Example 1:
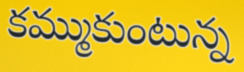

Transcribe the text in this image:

కమ్ముకుంటున్న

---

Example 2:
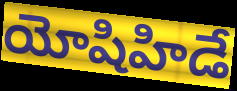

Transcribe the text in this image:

యోషిహిడే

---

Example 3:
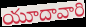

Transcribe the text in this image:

యూదావారి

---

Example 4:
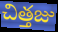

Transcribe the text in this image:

చిత్తజు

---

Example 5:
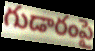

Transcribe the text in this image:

గుడారంపై